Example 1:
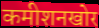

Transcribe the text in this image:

कमीशनखोर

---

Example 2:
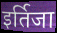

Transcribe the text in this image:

इर्तिजा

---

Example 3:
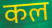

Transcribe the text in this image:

कल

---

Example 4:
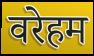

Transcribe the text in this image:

वरेहम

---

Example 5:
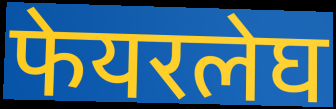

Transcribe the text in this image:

फेयरलेघ